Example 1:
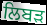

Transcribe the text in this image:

ਲਿਬੜ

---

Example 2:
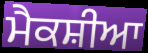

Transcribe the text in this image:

ਮੈਕਸ਼ੀਆ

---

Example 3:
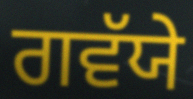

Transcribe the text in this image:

ਗਵੱਯੇ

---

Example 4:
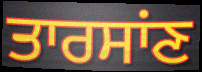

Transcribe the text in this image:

ਤਾਰਸਾਂਣ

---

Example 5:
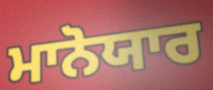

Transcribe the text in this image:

ਮਾਨੋਯਾਰ